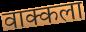
वाक्कला